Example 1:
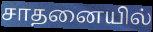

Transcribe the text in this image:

சாதனையில்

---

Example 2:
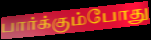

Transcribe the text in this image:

பார்க்கும்போது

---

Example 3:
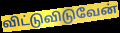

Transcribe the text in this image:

விட்டுவிடுவேன்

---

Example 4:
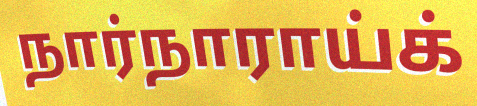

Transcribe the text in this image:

நார்நாராய்க்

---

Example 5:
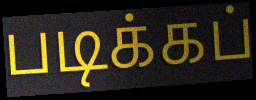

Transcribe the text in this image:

படிக்கப்